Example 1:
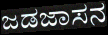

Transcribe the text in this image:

ಜಡಜಾಸನ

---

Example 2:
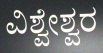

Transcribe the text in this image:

ವಿಶ್ವೇಶ್ವರ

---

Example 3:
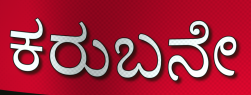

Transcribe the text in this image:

ಕರುಬನೇ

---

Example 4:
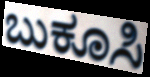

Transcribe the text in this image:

ಬುಕೂಸಿ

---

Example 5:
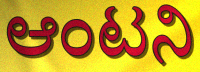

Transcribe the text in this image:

ಆಂಟನಿ